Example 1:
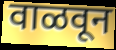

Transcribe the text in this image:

वाळवून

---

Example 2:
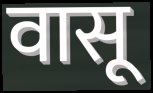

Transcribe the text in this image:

वासू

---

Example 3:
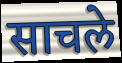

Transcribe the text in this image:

साचले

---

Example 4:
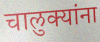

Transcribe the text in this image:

चालुक्यांना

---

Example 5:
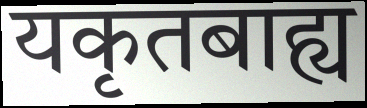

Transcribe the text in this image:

यकृतबाह्य